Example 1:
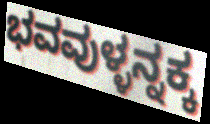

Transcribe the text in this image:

ಭವವುಳ್ಳನ್ನಕ್ಕ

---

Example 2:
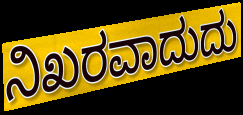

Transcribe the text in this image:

ನಿಖರವಾದುದು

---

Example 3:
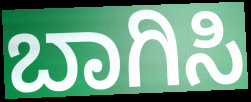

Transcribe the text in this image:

ಬಾಗಿಸಿ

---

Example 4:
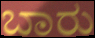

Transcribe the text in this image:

ಬಾರು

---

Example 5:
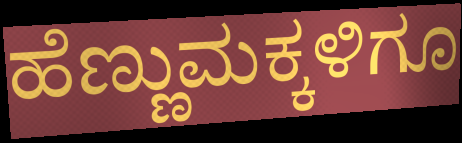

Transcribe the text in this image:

ಹೆಣ್ಣುಮಕ್ಕಳಿಗೂ